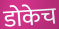
डोकेच